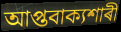
আপ্তবাক্যশাৰী